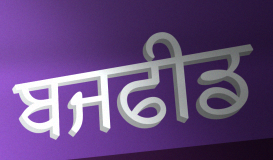
ਬਜਫੀਡ